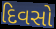
દિવસો